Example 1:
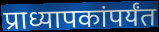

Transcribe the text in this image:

प्राध्यापकांपर्यंत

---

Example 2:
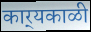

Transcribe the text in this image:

कार्यकाळी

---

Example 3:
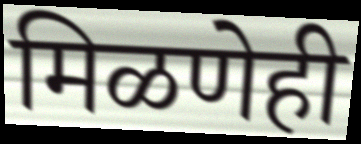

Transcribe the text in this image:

मिळणेही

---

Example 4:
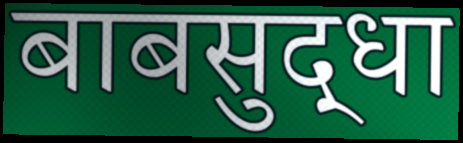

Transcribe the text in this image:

बाबसुद्धा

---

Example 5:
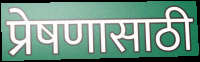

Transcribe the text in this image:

प्रेषणासाठी